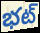
భట్